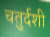
चतुर्दशी